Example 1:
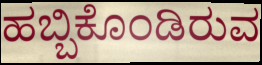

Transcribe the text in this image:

ಹಬ್ಬಿಕೊಂಡಿರುವ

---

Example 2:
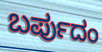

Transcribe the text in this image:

ಬರ್ಪುದಂ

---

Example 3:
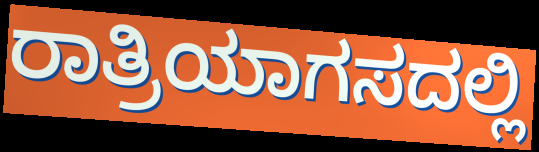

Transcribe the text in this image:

ರಾತ್ರಿಯಾಗಸದಲ್ಲಿ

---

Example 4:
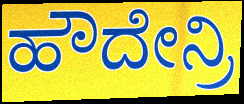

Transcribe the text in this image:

ಹೌದೇನ್ರಿ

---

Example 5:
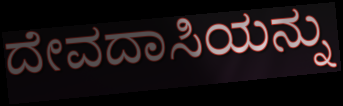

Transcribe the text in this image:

ದೇವದಾಸಿಯನ್ನು